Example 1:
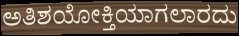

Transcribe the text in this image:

ಅತಿಶಯೋಕ್ತಿಯಾಗಲಾರದು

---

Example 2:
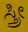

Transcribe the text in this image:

ಸ್ತ್ರೀ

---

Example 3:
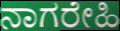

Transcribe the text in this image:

ನಾಗರೇಹಿ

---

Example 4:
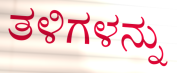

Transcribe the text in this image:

ತಳಿಗಳನ್ನು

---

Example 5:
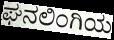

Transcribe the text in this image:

ಘನಲಿಂಗಿಯ